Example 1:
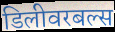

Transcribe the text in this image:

डिलीवरबल्स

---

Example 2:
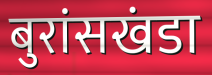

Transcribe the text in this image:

बुरांसखंडा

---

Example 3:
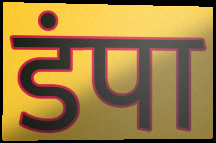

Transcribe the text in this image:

डंपा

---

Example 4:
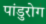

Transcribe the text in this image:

पांडुरोग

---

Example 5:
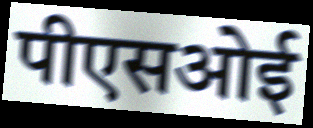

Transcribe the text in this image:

पीएसओई